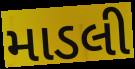
માડલી